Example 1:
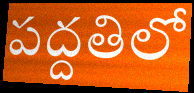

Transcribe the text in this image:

పద్దతిలో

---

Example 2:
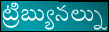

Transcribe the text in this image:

ట్రిబ్యునల్ను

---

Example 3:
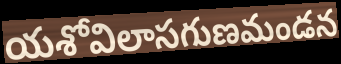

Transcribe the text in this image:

యశోవిలాసగుణమండన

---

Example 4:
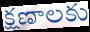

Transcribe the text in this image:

క్షణాలకు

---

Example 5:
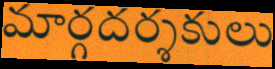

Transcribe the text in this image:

మార్గదర్శకులు